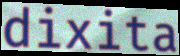
dixita